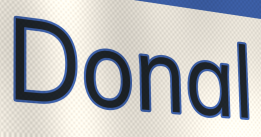
Donal